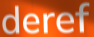
deref